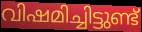
വിഷമിച്ചിട്ടുണ്ട്